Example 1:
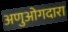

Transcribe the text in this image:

अणुओगदारा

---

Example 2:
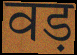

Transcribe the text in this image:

वड़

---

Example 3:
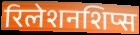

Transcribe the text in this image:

रिलेशनशिप्स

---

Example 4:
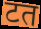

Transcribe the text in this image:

टत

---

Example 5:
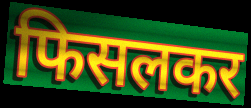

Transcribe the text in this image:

फिसलकर